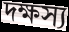
দক্ষস্য